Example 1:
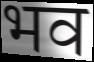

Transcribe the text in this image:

भव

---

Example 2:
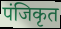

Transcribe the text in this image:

पंजिकृत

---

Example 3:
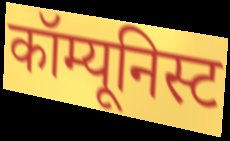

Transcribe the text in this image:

कॉम्यूनिस्ट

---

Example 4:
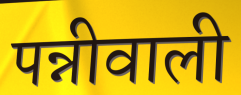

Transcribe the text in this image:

पन्नीवाली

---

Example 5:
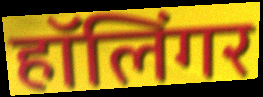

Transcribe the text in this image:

हॉलिंगर